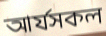
আৰ্যসকল